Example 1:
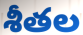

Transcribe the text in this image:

శీతల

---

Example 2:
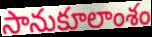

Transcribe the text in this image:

సానుకూలాంశం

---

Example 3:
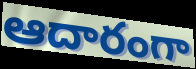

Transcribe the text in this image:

ఆదారంగా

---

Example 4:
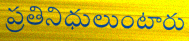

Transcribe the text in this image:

ప్రతినిధులుంటారు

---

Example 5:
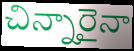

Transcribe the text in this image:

చిన్నారైనా